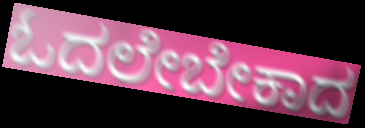
ಓದಲೇಬೇಕಾದ